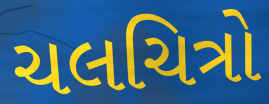
ચલચિત્રો